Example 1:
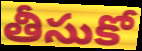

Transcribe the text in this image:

తీసుకో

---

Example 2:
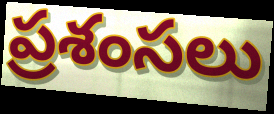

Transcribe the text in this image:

ప్రశంసలు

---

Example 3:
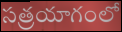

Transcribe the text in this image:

సత్రయాగంలో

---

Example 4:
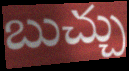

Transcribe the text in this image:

బుచ్చు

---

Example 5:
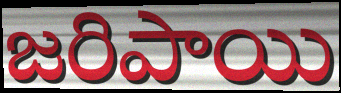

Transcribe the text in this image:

జరిపాయి